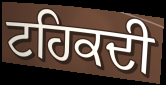
ਟਹਿਕਦੀ